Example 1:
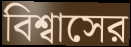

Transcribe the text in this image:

বিশ্বাসের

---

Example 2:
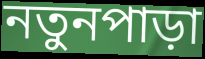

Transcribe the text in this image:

নতুনপাড়া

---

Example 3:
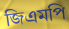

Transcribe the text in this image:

জিএমপি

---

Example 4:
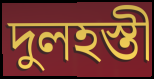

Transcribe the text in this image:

দুলহস্তী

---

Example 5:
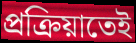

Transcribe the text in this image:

প্রক্রিয়াতেই